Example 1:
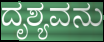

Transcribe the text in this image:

ದೃಶ್ಯವನು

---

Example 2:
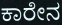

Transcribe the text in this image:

ಕಾರೇನ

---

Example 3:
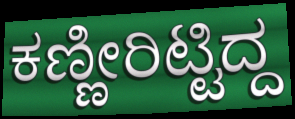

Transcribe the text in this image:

ಕಣ್ಣೀರಿಟ್ಟಿದ್ದ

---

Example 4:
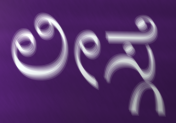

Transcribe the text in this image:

ಲೀಸ್ಗೆ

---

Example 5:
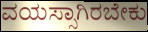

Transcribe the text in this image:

ವಯಸ್ಸಾಗಿರಬೇಕು